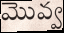
మొవ్వ